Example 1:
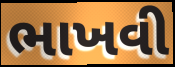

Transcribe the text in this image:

ભાખવી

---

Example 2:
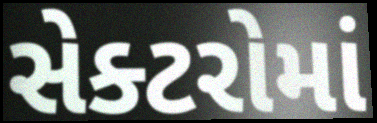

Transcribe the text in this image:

સેક્ટરોમાં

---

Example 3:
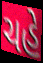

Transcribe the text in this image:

ચહે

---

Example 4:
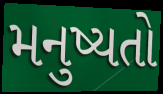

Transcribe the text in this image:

મનુષ્યતો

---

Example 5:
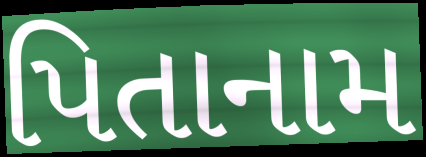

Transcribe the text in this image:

પિતાનામ